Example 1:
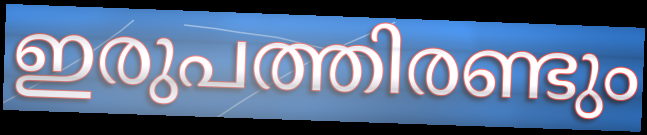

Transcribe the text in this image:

ഇരുപത്തിരണ്ടും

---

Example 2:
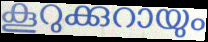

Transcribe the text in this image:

കൂറുക്കുറായും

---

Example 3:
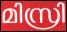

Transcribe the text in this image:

മിസ്രി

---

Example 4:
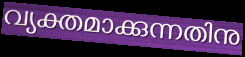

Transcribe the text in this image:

വ്യക്തമാക്കുന്നതിനു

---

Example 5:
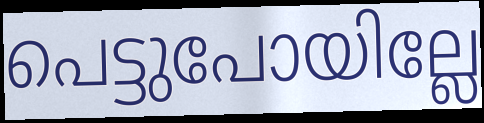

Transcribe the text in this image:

പെട്ടുപോയില്ലേ